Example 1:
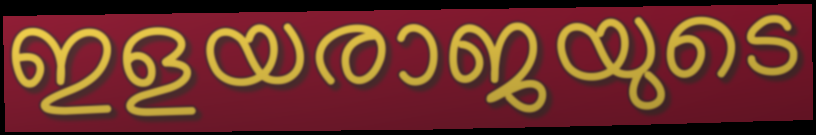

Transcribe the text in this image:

ഇളയരാജയുടെ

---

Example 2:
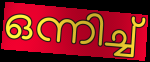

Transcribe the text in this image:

ഒന്നിച്ച്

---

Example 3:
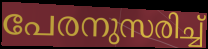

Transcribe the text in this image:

പേരനുസരിച്ച്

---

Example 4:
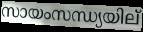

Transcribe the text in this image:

സായംസന്ധ്യയില്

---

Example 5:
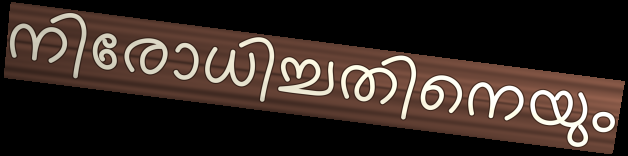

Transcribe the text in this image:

നിരോധിച്ചതിനെയും